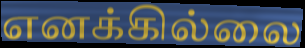
எனக்கில்லை